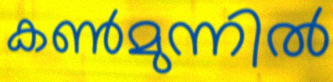
കൺമുന്നിൽ